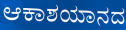
ಆಕಾಶಯಾನದ